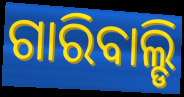
ଗାରିବାଲ୍ଡି